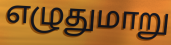
எழுதுமாறு